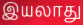
இயலாது